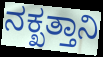
ನಕ್ಖತ್ತಾನಿ